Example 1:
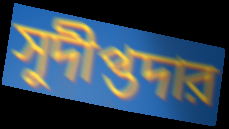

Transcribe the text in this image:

সুদীপ্তদার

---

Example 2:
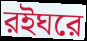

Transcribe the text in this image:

রইঘরে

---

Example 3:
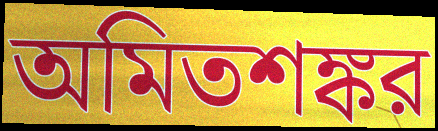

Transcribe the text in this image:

অমিতশঙ্কর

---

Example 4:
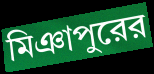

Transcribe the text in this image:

মিঞাপুরের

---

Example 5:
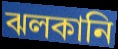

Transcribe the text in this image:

ঝলকানি